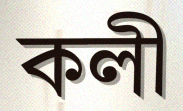
কলী